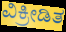
ವಿಕ್ರೀಡಿತ